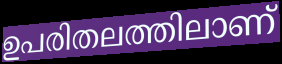
ഉപരിതലത്തിലാണ്